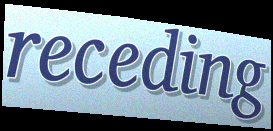
receding